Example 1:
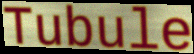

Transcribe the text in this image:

Tubule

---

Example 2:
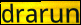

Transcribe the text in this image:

drarun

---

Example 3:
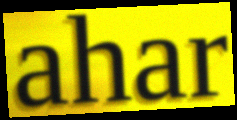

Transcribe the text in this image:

ahar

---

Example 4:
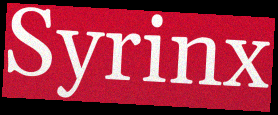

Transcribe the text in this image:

Syrinx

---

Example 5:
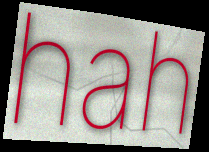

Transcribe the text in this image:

hah